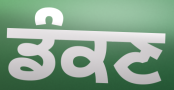
ਡੰਕਣ